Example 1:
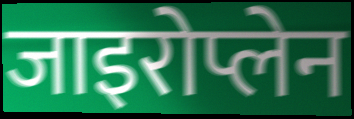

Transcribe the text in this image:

जाइरोप्लेन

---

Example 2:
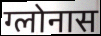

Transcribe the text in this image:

ग्लोनास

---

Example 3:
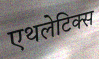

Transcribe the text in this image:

एथलेटिक्‍स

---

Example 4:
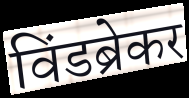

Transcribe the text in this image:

विंडब्रेकर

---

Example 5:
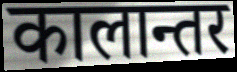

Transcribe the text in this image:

कालान्तर